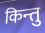
किन्‍तु